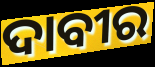
ଦାବୀର